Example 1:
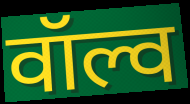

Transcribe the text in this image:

वॉल्व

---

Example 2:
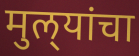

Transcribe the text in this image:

मुल्यांचा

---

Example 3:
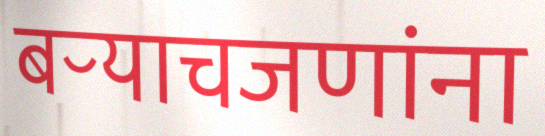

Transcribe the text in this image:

बऱ्याचजणांना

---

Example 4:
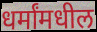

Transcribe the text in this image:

धर्मांमधील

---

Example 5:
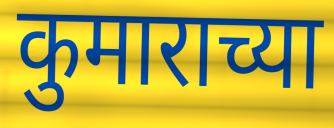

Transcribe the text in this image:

कुमाराच्या